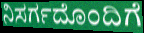
ನಿಸರ್ಗದೊಂದಿಗೆ